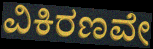
ವಿಕಿರಣವೇ